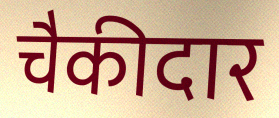
चैकीदार